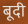
बूदी